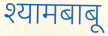
श्यामबाबू